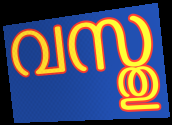
വസ്തു